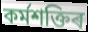
কৰ্মশক্তিৰ